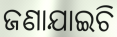
ଜଣାଯାଇଚି